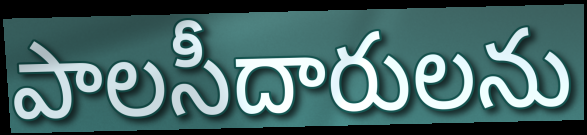
పాలసీదారులను